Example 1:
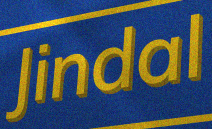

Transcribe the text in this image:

Jindal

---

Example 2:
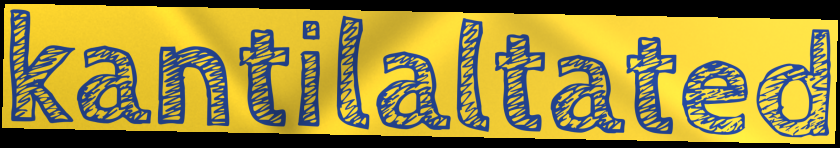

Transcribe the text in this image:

kantilaltated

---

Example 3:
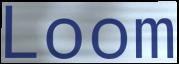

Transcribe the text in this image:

Loom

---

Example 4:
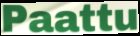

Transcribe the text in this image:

Paattu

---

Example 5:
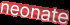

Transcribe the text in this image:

neonate